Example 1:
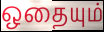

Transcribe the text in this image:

ஒதையும்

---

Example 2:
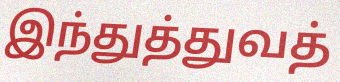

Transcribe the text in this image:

இந்துத்துவத்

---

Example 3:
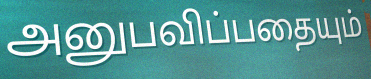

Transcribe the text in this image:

அனுபவிப்பதையும்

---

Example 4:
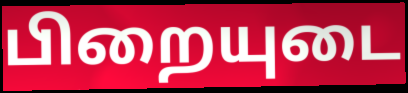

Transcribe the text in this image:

பிறையுடை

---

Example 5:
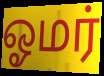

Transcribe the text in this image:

ஓமர்